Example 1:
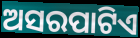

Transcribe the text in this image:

ଅସରପାଟିଏ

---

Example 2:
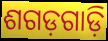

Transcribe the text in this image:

ଶଗଡ଼ଗାଡ଼ି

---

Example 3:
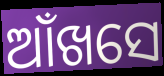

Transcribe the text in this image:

ଆଁଖସେ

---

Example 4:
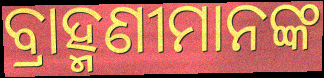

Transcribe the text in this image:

ବ୍ରାହ୍ମଣୀମାନଙ୍କ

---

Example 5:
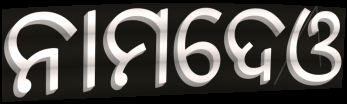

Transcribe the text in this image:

ନାମଦେଓ